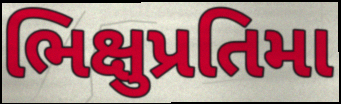
ભિક્ષુપ્રતિમા